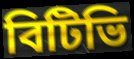
বিটিভি